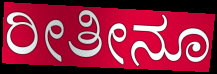
ರೀತೀನೂ